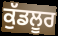
ਕੁੱਡਲੂਰ